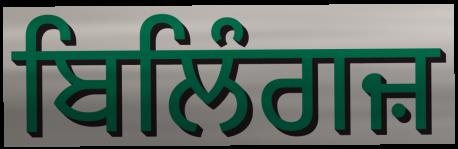
ਬਿਲਿੰਗਜ਼